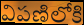
విపణిలోకి